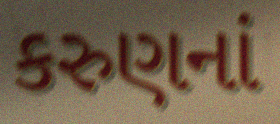
કરુણનાં